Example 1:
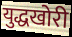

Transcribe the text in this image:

युद्धखोरी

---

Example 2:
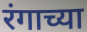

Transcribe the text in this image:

रंगाच्या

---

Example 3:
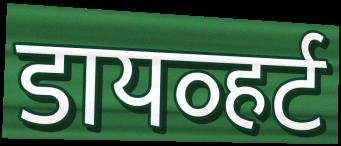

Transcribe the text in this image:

डायव्हर्ट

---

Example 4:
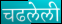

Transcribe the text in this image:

चढलेली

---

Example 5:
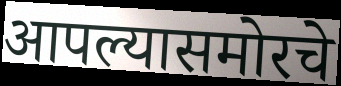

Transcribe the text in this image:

आपल्यासमोरचे